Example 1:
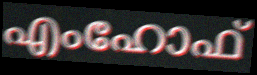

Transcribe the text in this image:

എംഹോഫ്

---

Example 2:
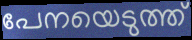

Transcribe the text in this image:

പേനയെടുത്ത്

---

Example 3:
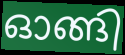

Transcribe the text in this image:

ഓങ്ങി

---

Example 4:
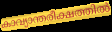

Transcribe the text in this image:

കാവ്യാന്തരീക്ഷത്തിൽ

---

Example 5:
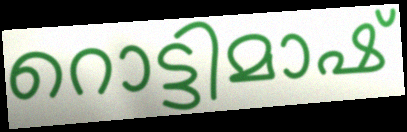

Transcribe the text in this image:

റൊട്ടിമാഷ്